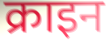
क्राइन